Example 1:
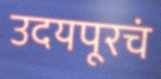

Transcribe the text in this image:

उदयपूरचं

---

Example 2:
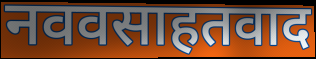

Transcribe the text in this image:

नववसाहतवाद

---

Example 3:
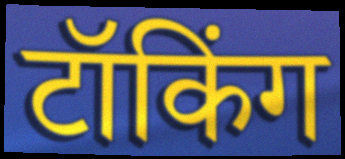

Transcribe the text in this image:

टॉकिंग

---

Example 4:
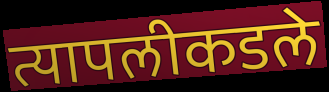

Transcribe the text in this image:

त्यापलीकडले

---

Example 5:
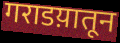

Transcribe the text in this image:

गराडय़ातून